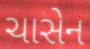
ચાસેન